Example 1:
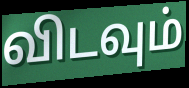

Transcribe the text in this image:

விடவும்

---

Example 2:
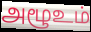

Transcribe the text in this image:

அழூஉம்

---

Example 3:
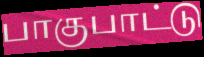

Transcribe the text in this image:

பாகுபாட்டு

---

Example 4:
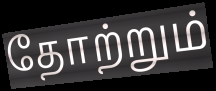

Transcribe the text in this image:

தோற்றும்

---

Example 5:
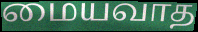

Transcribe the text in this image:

மையவாத